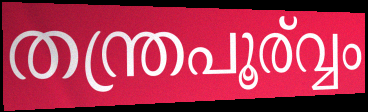
തന്ത്രപൂര്വ്വം